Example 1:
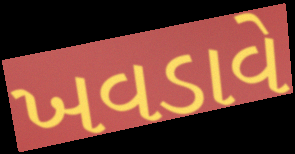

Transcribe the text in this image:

ખવડાવે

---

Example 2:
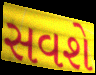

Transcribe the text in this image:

સવશે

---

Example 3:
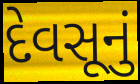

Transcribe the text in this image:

દેવસૂનું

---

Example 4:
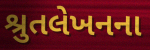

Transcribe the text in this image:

શ્રુતલેખનના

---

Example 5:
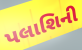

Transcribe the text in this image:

પલાશિની